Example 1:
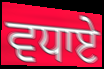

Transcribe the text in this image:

ਵਧਾਏ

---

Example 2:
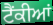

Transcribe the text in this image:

ਟੈਂਕੀਆਂ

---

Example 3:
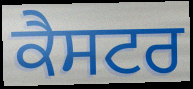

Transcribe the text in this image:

ਕੈਸਟਰ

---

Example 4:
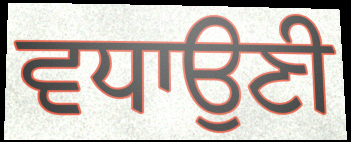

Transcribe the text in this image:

ਵਧਾਉਣੀ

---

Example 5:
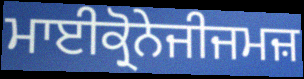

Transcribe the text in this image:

ਮਾਈਕ੍ਰੋਨੇਜੀਜਮਜ਼